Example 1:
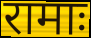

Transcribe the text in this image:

रामाः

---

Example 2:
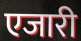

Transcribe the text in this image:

एजारी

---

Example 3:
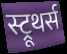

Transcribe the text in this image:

स्ट्रूथर्स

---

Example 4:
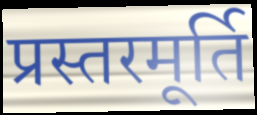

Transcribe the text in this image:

प्रस्तरमूर्ति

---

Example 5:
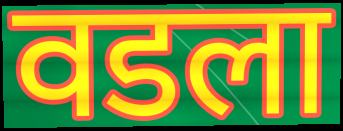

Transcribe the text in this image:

वडला